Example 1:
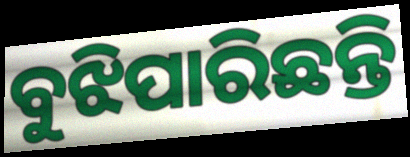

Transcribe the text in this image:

ବୁଝିପାରିଛନ୍ତି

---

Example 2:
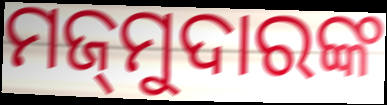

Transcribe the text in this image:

ମଜ୍‍ମୁଦାରଙ୍କ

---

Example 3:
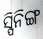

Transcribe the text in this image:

ସ୍ପିନିଙ୍ଗ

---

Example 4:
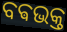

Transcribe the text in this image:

ବଵଭକ୍ତ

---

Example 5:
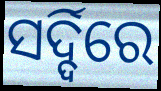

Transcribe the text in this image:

ସର୍ଦ୍ଦିରେ